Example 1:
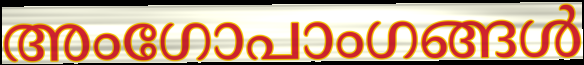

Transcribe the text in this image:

അംഗോപാംഗങ്ങൾ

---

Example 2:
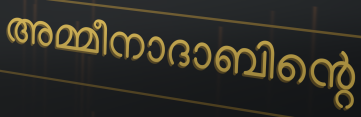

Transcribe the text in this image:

അമ്മീനാദാബിന്റെ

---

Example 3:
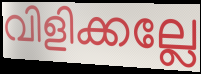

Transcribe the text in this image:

വിളിക്കല്ലേ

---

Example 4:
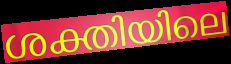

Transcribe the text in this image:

ശക്തിയിലെ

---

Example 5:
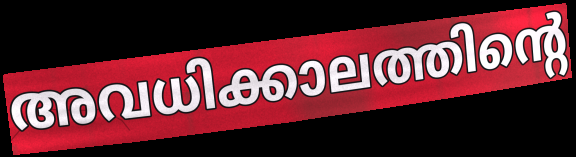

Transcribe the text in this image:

അവധിക്കാലത്തിന്റെ